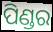
ପିଣ୍ଡର